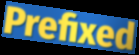
Prefixed